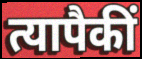
त्यापैकीं